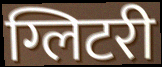
ग्लिटरी